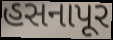
હસનાપૂર